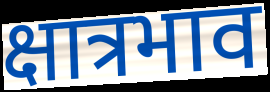
क्षात्रभाव